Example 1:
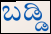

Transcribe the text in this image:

ಬಡ್ಡಿ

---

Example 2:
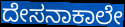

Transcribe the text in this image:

ದೇಸನಾಕಾಲೇ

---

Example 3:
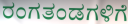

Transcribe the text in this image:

ರಂಗತಂಡಗಳಿಗೆ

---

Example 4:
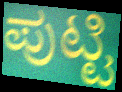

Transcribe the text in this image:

ಪುಟ್ಟಿ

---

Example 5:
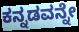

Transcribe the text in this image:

ಕನ್ನಡವನ್ನೇ